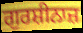
ਗੁਰਸ਼ੀਨਾਜ਼